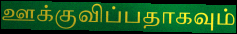
ஊக்குவிப்பதாகவும்